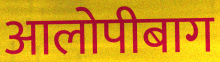
आलोपीबाग